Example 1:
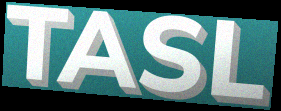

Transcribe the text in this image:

TASL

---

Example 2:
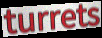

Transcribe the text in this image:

turrets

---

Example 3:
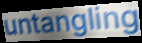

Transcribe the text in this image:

untangling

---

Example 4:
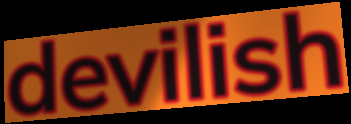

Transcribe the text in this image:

devilish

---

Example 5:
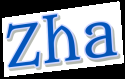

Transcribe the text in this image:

Zha